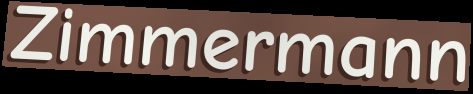
Zimmermann